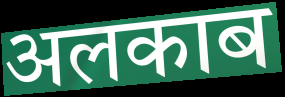
अलकाब